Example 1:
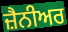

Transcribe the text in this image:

ਜ਼ੈਨੀਅਰ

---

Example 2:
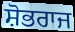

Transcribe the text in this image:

ਸ਼ੋਭਰਾਜ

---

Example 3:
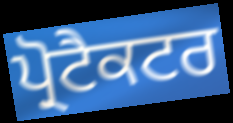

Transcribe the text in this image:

ਪ੍ਰੋਟੈਕਟਰ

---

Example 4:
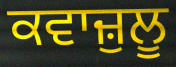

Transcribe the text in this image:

ਕਵਾਜ਼ੁਲੂ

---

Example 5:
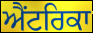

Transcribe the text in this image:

ਐਂਟਰਿਕਾ